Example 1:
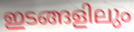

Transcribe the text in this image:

ഇടങ്ങളിലും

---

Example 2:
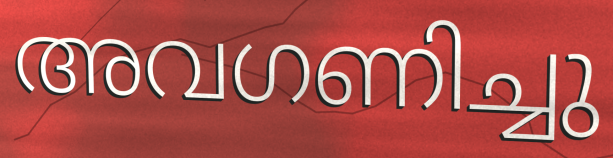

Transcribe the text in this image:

അവഗണിച്ചു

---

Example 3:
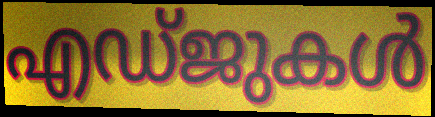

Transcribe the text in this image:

എഡ്ജുകൾ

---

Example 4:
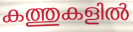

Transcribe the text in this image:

കത്തുകളിൽ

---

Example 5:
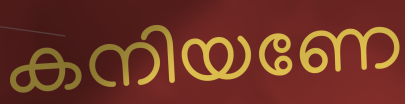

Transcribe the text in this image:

കനിയണേ